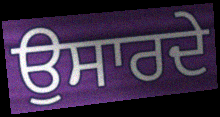
ਉਸਾਰਦੇ